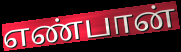
எண்பான்